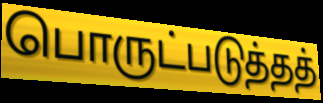
பொருட்படுத்தத்